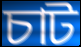
চাট